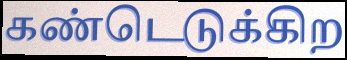
கண்டெடுக்கிற